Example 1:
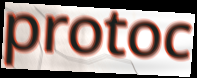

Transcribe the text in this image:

protoc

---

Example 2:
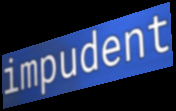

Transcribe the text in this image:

impudent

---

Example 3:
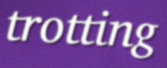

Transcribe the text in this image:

trotting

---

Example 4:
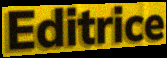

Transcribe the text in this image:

Editrice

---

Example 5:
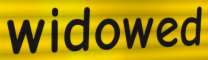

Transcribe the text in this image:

widowed